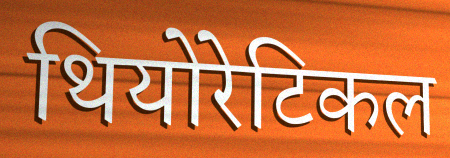
थियोरेटिकल